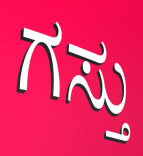
ಗಸ್ತು